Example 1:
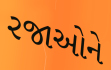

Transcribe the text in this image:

રજાઓને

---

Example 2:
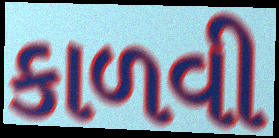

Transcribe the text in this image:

કાળવી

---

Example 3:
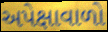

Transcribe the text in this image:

અપેક્ષાવાળો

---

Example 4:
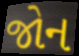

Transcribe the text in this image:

જોન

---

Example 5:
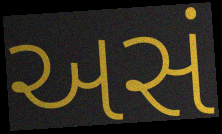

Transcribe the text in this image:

અસં